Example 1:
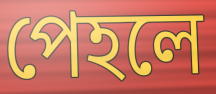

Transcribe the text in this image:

পেহলে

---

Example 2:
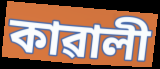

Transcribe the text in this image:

কাৱালী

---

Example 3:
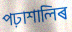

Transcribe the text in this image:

পঢ়াশালিৰ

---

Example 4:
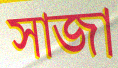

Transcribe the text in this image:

সাজা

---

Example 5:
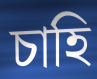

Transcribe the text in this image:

চাহি